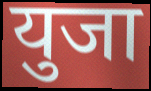
युजा